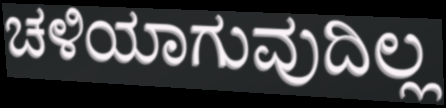
ಚಳಿಯಾಗುವುದಿಲ್ಲ